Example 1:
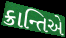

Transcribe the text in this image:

ક્રાન્તિએ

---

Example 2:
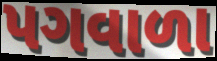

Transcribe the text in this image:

પગવાળા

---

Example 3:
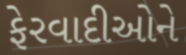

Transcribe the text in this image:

ફેરવાદીઓને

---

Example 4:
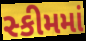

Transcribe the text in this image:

સ્કીમમાં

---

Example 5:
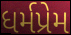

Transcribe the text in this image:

ધર્મપ્રેમ